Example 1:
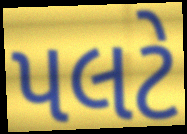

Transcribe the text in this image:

પલટે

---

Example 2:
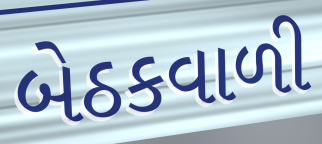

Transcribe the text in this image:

બેઠકવાળી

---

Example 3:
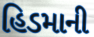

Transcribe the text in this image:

હિડમાની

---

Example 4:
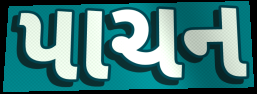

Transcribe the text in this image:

પાચન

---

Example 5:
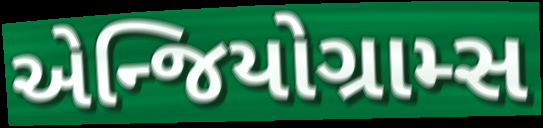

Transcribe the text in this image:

એન્જિયોગ્રામ્સ